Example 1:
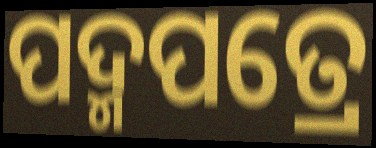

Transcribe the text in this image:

ପଦ୍ମପତ୍ରେ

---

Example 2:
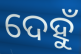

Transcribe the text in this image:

ଦେହୁଁ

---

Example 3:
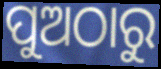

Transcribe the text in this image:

ପୁଅଠାରୁ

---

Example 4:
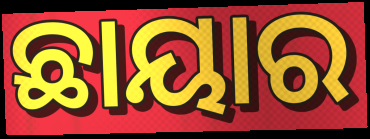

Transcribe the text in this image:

ଛାୟାର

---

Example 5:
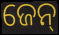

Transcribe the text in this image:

ଜେନ୍